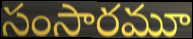
సంసారమూ